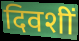
दिवशीं